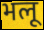
भलू